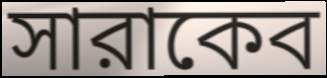
সারাকেব